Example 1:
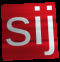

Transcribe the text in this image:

sij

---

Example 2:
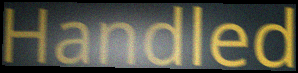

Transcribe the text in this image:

Handled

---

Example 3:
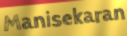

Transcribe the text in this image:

Manisekaran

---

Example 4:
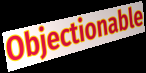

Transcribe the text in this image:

Objectionable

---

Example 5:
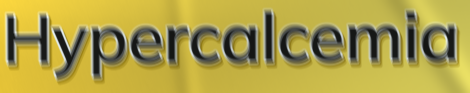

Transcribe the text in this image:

Hypercalcemia